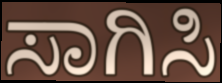
ಸಾಗಿಸಿ